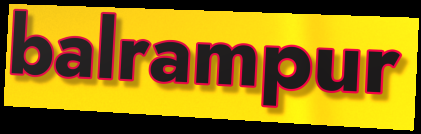
balrampur